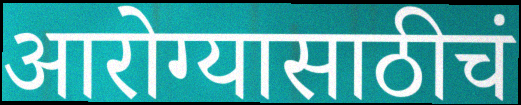
आरोग्यासाठीचं